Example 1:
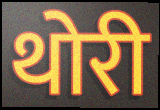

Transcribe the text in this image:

थोरी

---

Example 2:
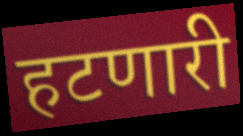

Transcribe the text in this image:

हटणारी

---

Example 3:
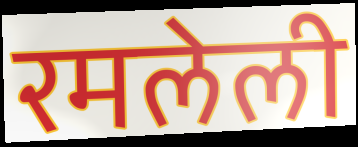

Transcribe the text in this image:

रमलेली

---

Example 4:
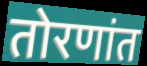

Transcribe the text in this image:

तोरणांत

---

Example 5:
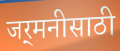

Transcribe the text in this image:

जर्मनीसाठी